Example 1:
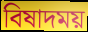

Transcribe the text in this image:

বিষাদময়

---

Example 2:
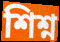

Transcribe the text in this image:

শিশ্ন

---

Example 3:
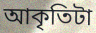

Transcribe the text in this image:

আকৃতিটা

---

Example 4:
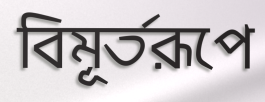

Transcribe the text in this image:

বিমূর্তরূপে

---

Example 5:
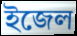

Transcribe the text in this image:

ইজেল